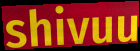
shivuu